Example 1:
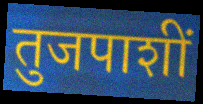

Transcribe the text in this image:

तुजपाशीं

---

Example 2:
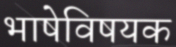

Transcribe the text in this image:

भाषेविषयक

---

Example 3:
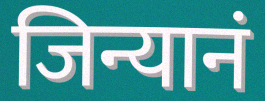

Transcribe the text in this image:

जिन्यानं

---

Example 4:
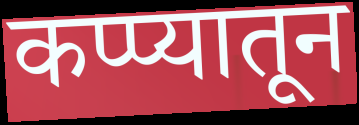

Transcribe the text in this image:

कप्प्यातून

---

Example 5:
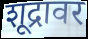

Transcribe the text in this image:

शूद्रावर